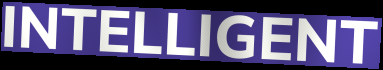
INTELLIGENT